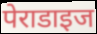
पेराडाइज